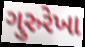
ગુરુરેખા